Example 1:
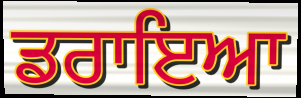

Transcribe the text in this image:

ਡਰਾਇਆ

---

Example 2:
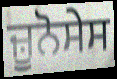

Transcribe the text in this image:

ਜ਼ੂਨੋਸੇਸ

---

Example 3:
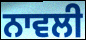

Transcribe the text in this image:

ਨਾਵਲੀ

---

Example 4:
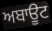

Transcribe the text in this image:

ਅਬਾਊਟ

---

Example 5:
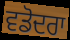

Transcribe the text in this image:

ਵਡੋਦਰਾ